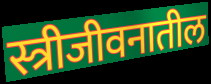
स्त्रीजीवनातील